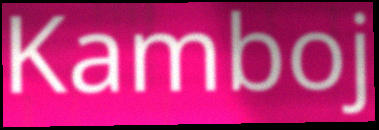
Kamboj